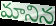
మానిన